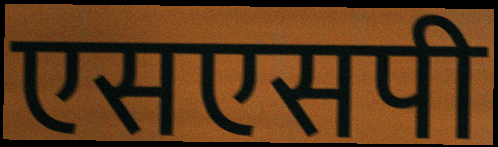
एसएसपी